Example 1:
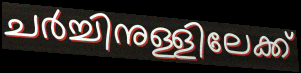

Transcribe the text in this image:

ചർച്ചിനുള്ളിലേക്ക്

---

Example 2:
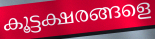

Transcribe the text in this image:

കൂട്ടക്ഷരങ്ങളെ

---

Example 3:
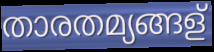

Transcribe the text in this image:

താരതമ്യങ്ങള്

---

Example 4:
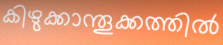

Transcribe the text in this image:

കിഴുക്കാന്തൂക്കത്തിൽ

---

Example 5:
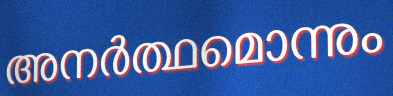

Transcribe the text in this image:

അനർത്ഥമൊന്നും